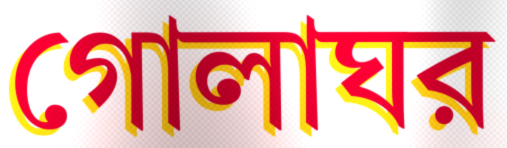
গোলাঘর